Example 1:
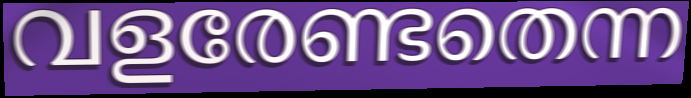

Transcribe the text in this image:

വളരേണ്ടതെന്ന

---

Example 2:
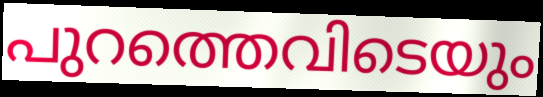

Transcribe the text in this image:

പുറത്തെവിടെയും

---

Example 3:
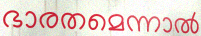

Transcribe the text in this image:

ഭാരതമെന്നാൽ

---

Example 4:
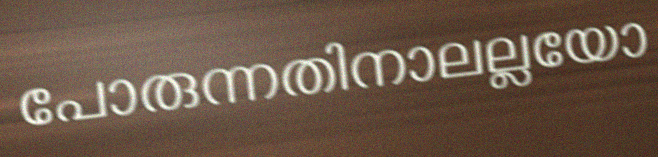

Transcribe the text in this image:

പോരുന്നതിനാലല്ലയോ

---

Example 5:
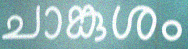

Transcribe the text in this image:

ചാങ്കുശം